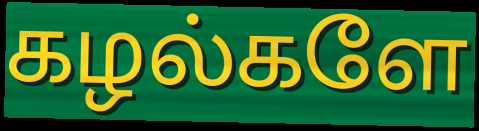
கழல்களே